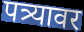
पत्र्यावर